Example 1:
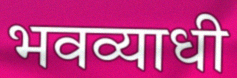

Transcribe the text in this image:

भवव्याधी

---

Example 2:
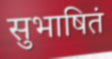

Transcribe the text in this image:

सुभाषितं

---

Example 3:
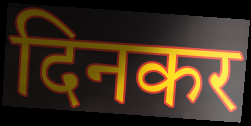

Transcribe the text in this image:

दिनकर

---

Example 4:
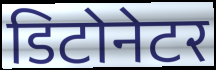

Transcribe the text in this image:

डिटोनेटर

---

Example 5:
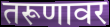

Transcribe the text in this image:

तरूणावर